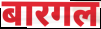
बारगल